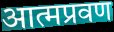
आत्मप्रवण